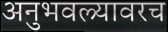
अनुभवल्यावरच